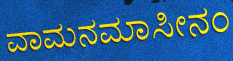
ವಾಮನಮಾಸೀನಂ